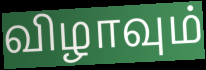
விழாவும்